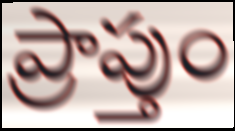
ప్రాప్తుం